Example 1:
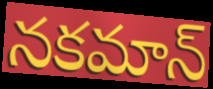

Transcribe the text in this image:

నకమాన్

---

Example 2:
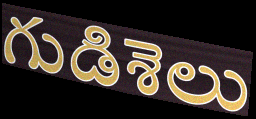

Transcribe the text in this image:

గుడిశెలు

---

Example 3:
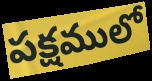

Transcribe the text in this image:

పక్షములో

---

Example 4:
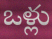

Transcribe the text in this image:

ఒళ్లు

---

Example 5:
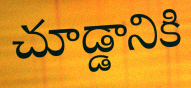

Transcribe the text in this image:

చూడ్డానికి